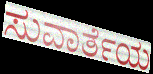
ಸುವಾರ್ತೆಯ